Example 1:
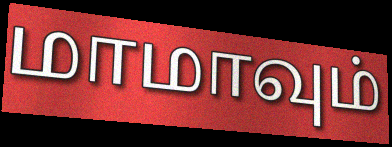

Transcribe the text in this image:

மாமாவும்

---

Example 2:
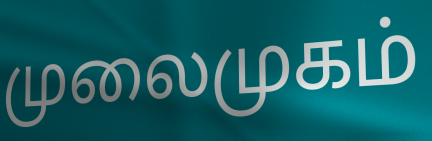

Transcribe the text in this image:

முலைமுகம்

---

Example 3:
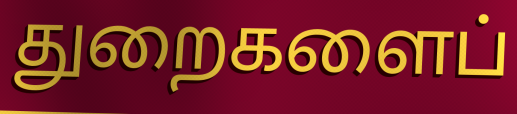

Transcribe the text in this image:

துறைகளைப்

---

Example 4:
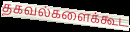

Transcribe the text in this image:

தகவல்களைக்கூட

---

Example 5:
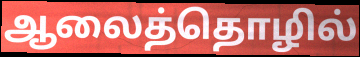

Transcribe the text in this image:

ஆலைத்தொழில்